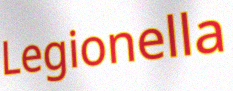
Legionella